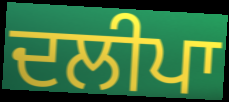
ਦਲੀਪਾ